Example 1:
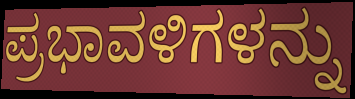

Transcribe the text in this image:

ಪ್ರಭಾವಳಿಗಳನ್ನು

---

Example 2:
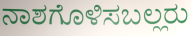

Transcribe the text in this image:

ನಾಶಗೊಳಿಸಬಲ್ಲರು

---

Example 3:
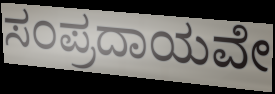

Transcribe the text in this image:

ಸಂಪ್ರದಾಯವೇ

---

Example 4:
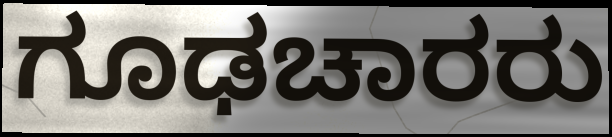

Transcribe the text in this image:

ಗೂಢಚಾರರು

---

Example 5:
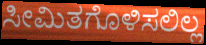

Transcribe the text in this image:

ಸೀಮಿತಗೊಳಿಸಲಿಲ್ಲ